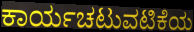
ಕಾರ್ಯಚಟುವಟಿಕೆಯ